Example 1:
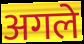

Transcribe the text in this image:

अगले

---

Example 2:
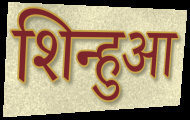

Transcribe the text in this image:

शिन्हुआ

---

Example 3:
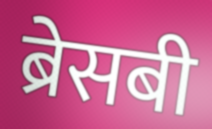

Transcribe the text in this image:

ब्रेसबी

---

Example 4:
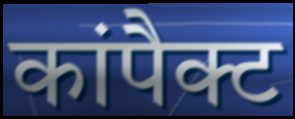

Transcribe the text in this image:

कांपैक्ट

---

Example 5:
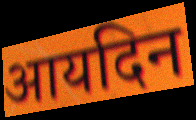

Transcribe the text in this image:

आयदिन